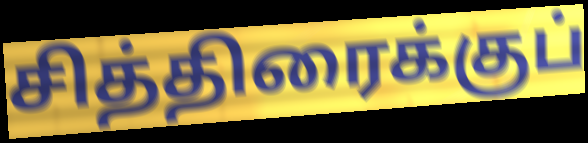
சித்திரைக்குப்